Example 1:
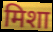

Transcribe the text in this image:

मिशा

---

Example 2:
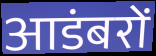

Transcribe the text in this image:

आडंबरों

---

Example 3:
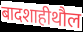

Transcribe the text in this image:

बादशाहीथौल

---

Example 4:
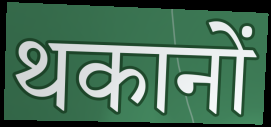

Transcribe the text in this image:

थकानों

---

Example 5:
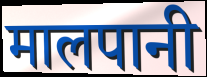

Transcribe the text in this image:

मालपानी